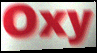
Oxy